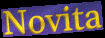
Novita